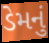
ડેમનું